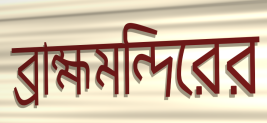
ব্রাহ্মমন্দিরের